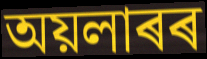
অয়লাৰৰ